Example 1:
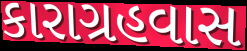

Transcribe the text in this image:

કારાગ્રહવાસ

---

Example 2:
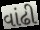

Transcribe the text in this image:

વાંઢી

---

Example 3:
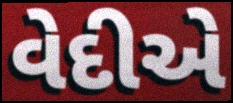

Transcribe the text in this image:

વેદીએ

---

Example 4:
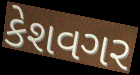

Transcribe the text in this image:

કેશવગર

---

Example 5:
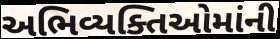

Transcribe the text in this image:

અભિવ્યક્તિઓમાંની